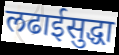
लढाईसुद्धा